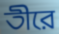
তীরে